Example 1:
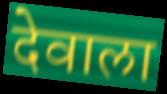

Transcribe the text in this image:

देवाला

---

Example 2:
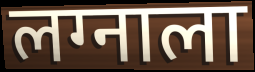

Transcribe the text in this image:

लग्नाला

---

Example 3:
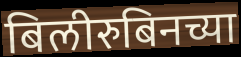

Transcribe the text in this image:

बिलीरुबिनच्या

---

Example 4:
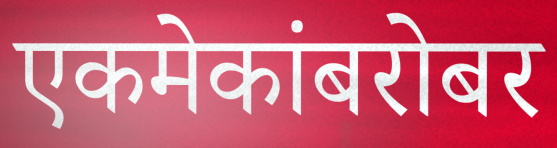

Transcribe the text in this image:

एकमेकांबरोबर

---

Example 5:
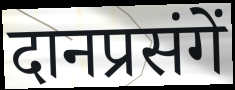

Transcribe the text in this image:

दानप्रसंगें